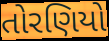
તોરણિયો